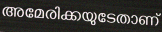
അമേരിക്കയുടേതാണ്